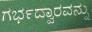
ಗರ್ಭದ್ವಾರವನ್ನು